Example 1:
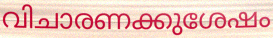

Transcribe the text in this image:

വിചാരണക്കുശേഷം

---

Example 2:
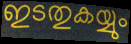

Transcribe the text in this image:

ഇടതുകയ്യും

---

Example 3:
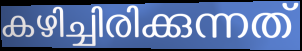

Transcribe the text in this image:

കഴിച്ചിരിക്കുന്നത്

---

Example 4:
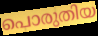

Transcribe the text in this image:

പൊരുതിയ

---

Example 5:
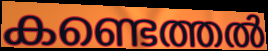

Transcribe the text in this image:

കണ്ടെത്തൽ